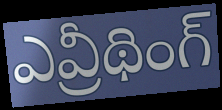
ఎవ్రీథింగ్